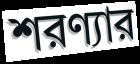
শরণ্যার